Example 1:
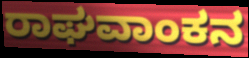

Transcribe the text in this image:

ರಾಘವಾಂಕನ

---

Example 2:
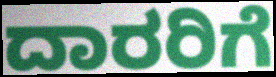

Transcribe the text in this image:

ದಾರರಿಗೆ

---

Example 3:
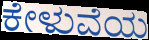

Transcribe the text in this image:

ಕೇಳುವೆಯ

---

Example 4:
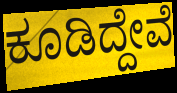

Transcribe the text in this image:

ಕೂಡಿದ್ದೇವೆ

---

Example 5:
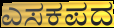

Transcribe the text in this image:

ಎಸಕಪದ